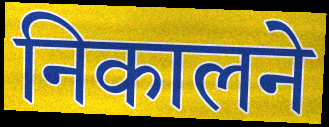
निकालने